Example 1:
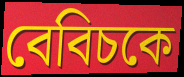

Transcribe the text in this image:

বেবিচকে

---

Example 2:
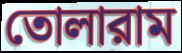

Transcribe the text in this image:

তোলারাম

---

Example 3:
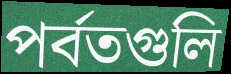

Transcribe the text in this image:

পর্বতগুলি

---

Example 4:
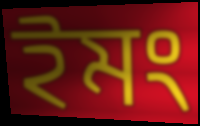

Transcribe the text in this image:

ইমং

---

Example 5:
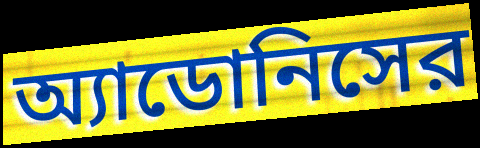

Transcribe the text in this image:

অ্যাডোনিসের